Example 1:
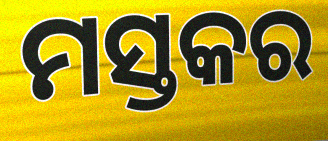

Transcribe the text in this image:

ମସ୍ତକର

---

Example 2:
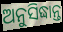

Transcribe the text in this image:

ଅନୁସିଦ୍ଧାନ୍ତ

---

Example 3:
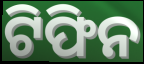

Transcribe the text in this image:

ଟିଫିନ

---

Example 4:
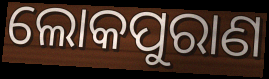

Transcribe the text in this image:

ଲୋକପୁରାଣ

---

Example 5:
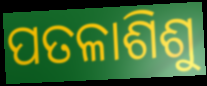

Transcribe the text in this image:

ପତଳାଶିଶୁ